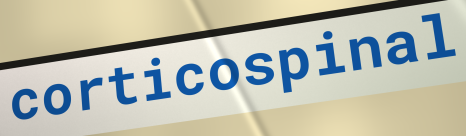
corticospinal